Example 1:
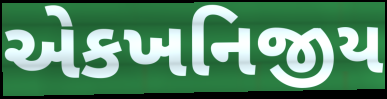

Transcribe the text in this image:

એકખનિજીય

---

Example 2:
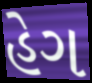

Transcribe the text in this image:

હેગ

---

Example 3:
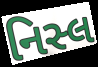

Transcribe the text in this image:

નિસ્લ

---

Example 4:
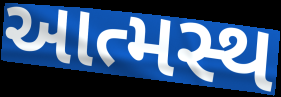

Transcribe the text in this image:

આત્મસ્થ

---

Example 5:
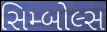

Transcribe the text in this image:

સિમ્બોલ્સ